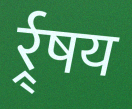
र्र्र्षय